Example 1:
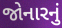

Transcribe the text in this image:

જોનારનું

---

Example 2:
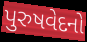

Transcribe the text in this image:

પુરુષવેદનો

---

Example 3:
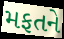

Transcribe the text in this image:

મફતને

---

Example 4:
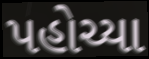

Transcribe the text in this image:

પહોચ્યા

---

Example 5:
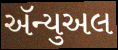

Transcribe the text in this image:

ઍન્યુઅલ